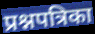
प्रश्नपत्रिका